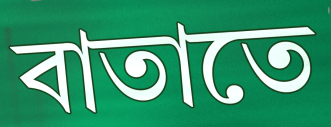
বাতাতে